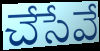
చేసేవే